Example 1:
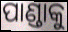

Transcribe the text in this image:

ପାଣ୍ଡାକୁ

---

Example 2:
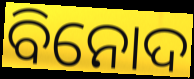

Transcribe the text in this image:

ବିନୋଦ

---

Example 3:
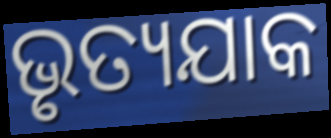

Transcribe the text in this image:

ଭୃତ୍ୟଯାକ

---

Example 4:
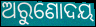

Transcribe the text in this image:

ଅରୁଣୋଦୟ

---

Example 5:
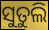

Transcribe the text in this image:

ସୁତୁଲି